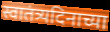
स्वातंत्र्यदिनाच्या